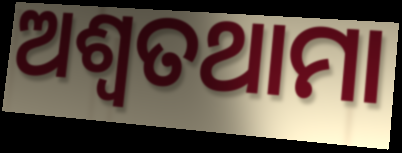
ଅଶ୍ୱତଥାମା